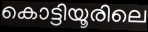
കൊട്ടിയൂരിലെ